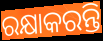
ରକ୍ଷାକରନ୍ତି